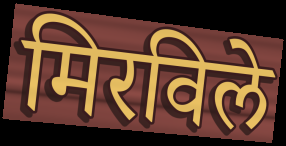
मिरविले